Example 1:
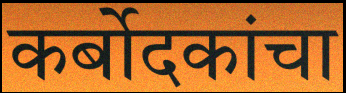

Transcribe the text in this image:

कर्बोदकांचा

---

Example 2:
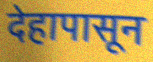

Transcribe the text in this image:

देहापासून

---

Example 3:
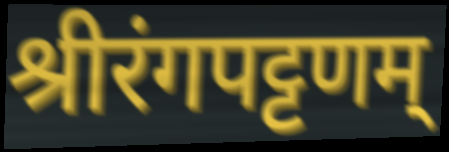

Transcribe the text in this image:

श्रीरंगपट्टणम्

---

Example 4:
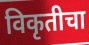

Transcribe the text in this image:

विकृतीचा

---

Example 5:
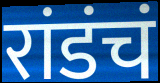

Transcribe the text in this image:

रांडंचं